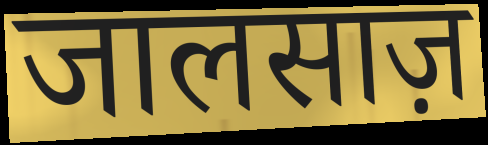
जालसाज़